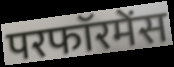
परफॉरमेंस